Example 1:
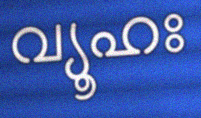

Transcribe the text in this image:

വ്യൂഹഃ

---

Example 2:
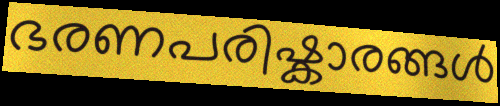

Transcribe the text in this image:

ഭരണപരിഷ്കാരങ്ങൾ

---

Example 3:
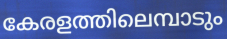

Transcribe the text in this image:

കേരളത്തിലെമ്പാടും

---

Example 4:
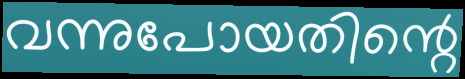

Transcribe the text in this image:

വന്നുപോയതിന്റെ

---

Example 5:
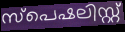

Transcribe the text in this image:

സ്പെഷലിസ്റ്റ്